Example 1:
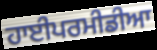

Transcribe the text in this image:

ਹਾਈਪਰਮੀਡੀਆ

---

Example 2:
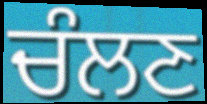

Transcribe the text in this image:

ਚੰਲਣ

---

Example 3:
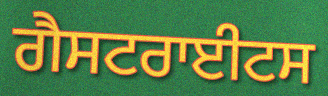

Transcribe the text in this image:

ਗੈਸਟਰਾਈਟਸ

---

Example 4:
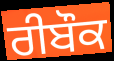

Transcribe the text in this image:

ਰੀਬੌਕ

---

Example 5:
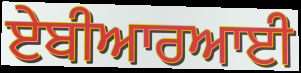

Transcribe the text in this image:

ਏਬੀਆਰਆਈ